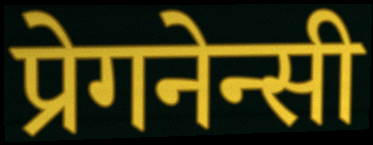
प्रेगनेन्सी